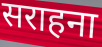
सराहना